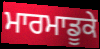
ਮਾਰਮਾਡੂਕੇ